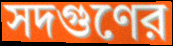
সদগুণের